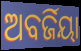
ଅବର୍ଜିୟା